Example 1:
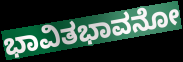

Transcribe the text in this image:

ಭಾವಿತಭಾವನೋ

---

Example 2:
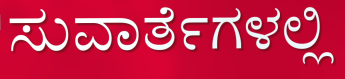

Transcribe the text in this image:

ಸುವಾರ್ತೆಗಳಲ್ಲಿ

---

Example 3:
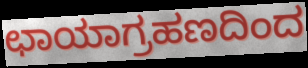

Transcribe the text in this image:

ಛಾಯಾಗ್ರಹಣದಿಂದ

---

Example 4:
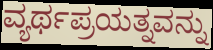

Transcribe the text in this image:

ವ್ಯರ್ಥಪ್ರಯತ್ನವನ್ನು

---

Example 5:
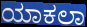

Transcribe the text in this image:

ಯಾಕಲಾ